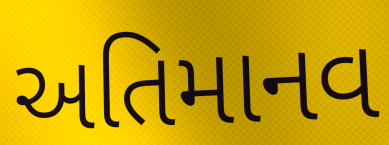
અતિમાનવ